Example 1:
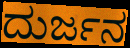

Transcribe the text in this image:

ದುರ್ಜನ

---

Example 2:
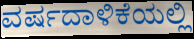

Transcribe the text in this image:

ವರ್ಷದಾಳಿಕೆಯಲ್ಲಿ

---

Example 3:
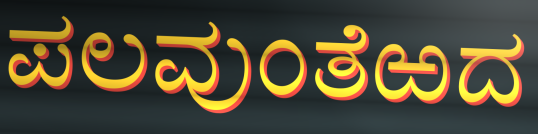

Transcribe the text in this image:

ಪಲವುಂತೆಱದ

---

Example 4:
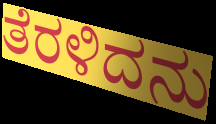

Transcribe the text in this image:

ತೆರಳಿದನು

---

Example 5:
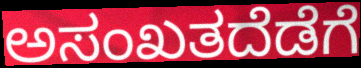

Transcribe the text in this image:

ಅಸಂಖತದೆಡೆಗೆ